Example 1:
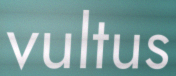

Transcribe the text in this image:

vultus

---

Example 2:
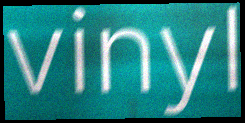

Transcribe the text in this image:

vinyl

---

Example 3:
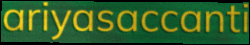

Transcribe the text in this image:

ariyasaccanti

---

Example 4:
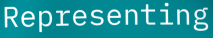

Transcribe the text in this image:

Representing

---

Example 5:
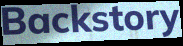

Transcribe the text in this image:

Backstory